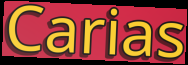
Carias